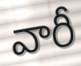
వారీ